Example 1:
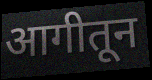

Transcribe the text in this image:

आगीतून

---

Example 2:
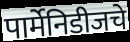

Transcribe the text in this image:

पार्मेनिडीजचे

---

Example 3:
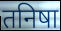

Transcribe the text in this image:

तनिषा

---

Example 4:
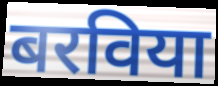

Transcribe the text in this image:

बरविया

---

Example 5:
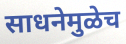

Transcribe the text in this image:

साधनेमुळेच